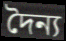
দৈন্য